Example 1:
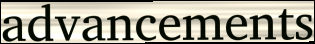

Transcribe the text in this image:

advancements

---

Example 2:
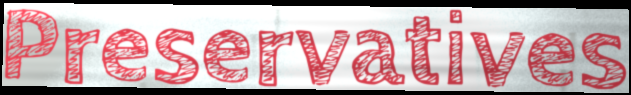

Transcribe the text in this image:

Preservatives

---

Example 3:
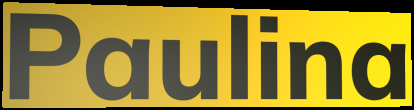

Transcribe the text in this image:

Paulina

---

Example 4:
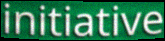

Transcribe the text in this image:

initiative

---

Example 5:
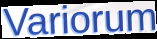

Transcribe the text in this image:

Variorum